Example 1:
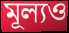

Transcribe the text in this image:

মূল্যও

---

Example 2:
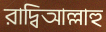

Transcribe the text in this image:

রাদ্বিআল্লাহু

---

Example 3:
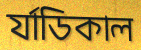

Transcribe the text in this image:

র্যাডিকাল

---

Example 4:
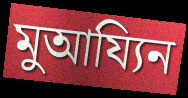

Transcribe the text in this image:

মুআয্যিন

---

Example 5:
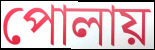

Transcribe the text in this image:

পোলায়